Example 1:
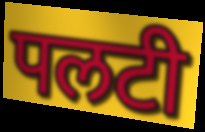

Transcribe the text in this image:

पलटी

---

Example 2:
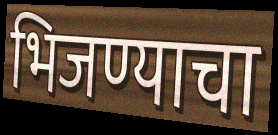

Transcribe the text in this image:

भिजण्याचा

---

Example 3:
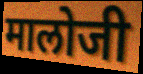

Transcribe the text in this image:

मालोजी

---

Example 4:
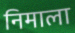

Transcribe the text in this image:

निमाला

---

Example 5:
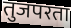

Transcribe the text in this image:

तुजपरता